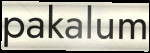
pakalum